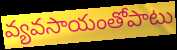
వ్యవసాయంతోపాటు